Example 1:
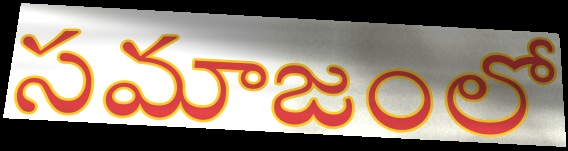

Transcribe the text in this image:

సమాజంలో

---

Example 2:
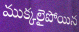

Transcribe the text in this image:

ముక్కలైపోయిన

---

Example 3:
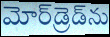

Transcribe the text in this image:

మోర్‌డ్రెడ్‌ను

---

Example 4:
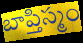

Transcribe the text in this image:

బాప్తిస్మం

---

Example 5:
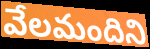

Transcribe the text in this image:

వేలమందిని